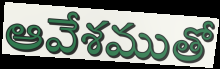
ఆవేశముతో